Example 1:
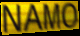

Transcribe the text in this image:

NAMO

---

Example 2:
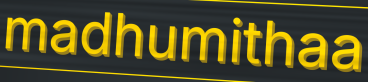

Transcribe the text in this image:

madhumithaa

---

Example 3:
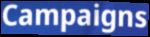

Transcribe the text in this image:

Campaigns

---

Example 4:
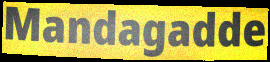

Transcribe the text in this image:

Mandagadde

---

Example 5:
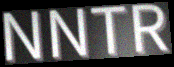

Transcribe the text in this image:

NNTR